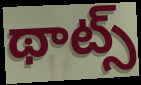
థాట్స్